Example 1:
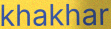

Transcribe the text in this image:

khakhar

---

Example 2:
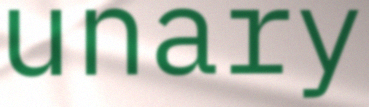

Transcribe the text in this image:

unary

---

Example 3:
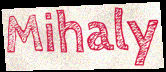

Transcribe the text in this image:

Mihaly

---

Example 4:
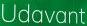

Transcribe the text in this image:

Udavant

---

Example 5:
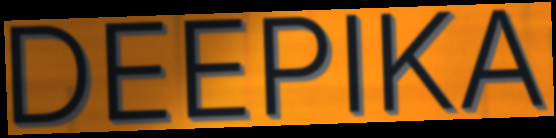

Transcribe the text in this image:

DEEPIKA